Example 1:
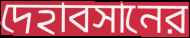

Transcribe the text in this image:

দেহাবসানের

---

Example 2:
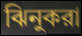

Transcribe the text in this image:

ঝিনুকরা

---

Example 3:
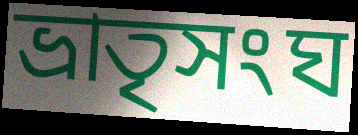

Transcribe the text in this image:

ভ্রাতৃসংঘ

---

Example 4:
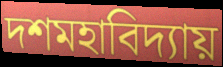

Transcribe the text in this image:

দশমহাবিদ্যায়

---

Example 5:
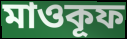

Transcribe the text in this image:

মাওকূফ